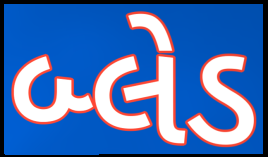
બ્લેડ